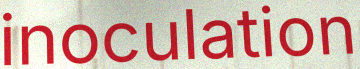
inoculation